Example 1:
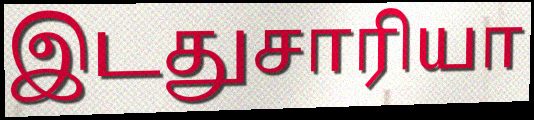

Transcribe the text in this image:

இடதுசாரியா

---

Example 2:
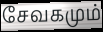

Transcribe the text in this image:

சேவகமும்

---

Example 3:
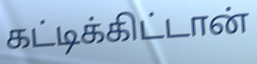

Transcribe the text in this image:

கட்டிக்கிட்டான்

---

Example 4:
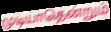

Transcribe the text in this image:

முடியாதென்றும்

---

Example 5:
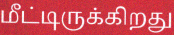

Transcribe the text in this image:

மீட்டிருக்கிறது